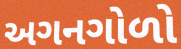
અગનગોળો